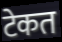
टेकत